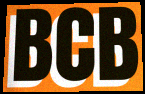
BCB